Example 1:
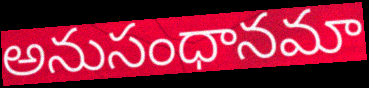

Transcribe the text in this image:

అనుసంధానమా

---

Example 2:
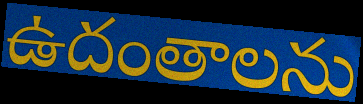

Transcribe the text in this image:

ఉదంతాలను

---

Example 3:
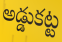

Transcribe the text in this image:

అడ్డుకట్ట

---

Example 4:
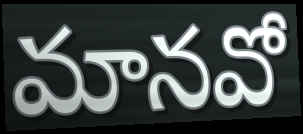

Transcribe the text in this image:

మానవో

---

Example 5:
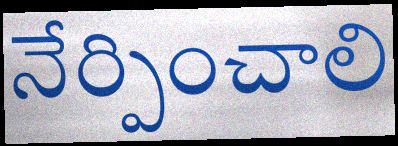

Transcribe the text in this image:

నేర్పించాలి